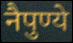
नैपुण्ये